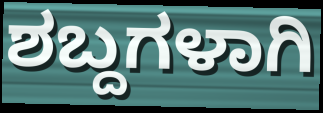
ಶಬ್ದಗಳಾಗಿ